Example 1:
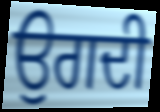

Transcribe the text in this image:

ਉਗਦੀ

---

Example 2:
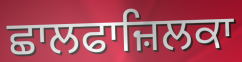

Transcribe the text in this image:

ਛਾਲਫਾਜ਼ਿਲਕਾ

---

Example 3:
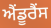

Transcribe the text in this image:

ਐਂਡੂਰੈਂਸ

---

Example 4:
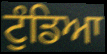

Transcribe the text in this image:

ਟੁੰਡਿਆ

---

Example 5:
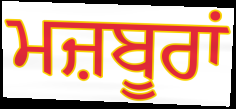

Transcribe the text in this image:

ਮਜ਼ਬੂਰਾਂ